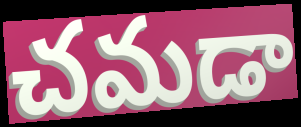
చమడా